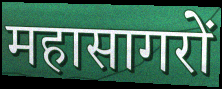
महासागरों